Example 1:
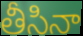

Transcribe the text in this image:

తీసినా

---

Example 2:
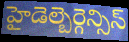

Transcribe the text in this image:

హైడెల్బెర్గెన్సిస్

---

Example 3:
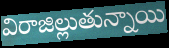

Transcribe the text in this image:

విరాజిల్లుతున్నాయి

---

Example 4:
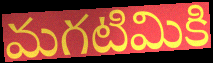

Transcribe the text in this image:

మగటిమికి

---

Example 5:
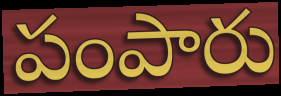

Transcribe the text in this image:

పంపారు